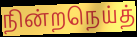
நின்றநெய்த்